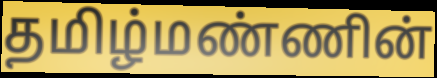
தமிழ்மண்ணின்